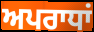
ਅਪਰਾਧਾਂ